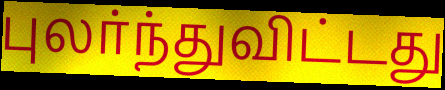
புலர்ந்துவிட்டது